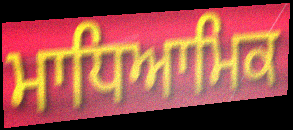
ਮਾਧਿਆਮਿਕ